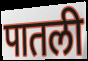
पातली